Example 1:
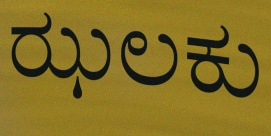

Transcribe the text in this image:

ಝಲಕು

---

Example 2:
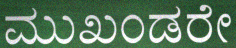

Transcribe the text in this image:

ಮುಖಂಡರೇ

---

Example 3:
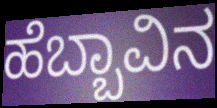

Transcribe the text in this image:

ಹೆಬ್ಬಾವಿನ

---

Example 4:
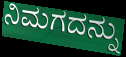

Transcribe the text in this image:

ನಿಮಗದನ್ನು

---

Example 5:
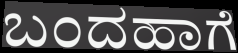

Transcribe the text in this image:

ಬಂದಹಾಗೆ